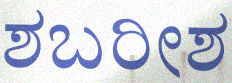
ಶಬರೀಶ